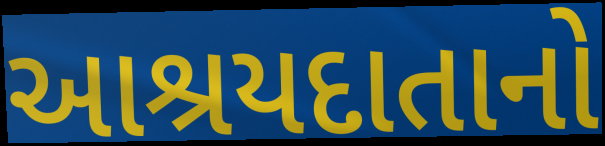
આશ્રયદાતાનો